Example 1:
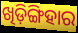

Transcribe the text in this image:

ଖିଡ଼ିଙ୍ଗିହାର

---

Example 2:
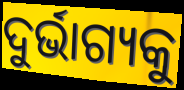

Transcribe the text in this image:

ଦୁର୍ଭାଗ୍ୟକୁ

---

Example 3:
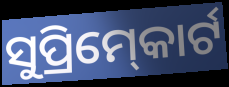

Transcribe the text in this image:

ସୁପ୍ରିମ୍‍କୋର୍ଟ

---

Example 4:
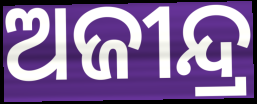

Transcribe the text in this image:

ଅଜୀନ୍ଦ୍ର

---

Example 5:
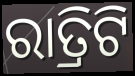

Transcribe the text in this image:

ରାତ୍ରିଟି